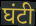
घंटी